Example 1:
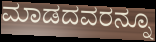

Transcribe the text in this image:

ಮಾಡದವರನ್ನೂ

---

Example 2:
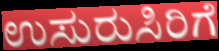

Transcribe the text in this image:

ಉಸುರುಸಿರಿಗೆ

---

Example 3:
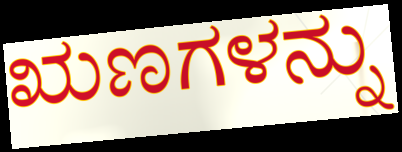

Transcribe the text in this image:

ಋಣಗಳನ್ನು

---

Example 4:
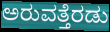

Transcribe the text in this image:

ಅರುವತ್ತೆರಡು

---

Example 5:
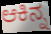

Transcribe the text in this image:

ಆಕಿನ್ನ